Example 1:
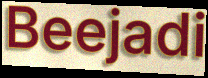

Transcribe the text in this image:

Beejadi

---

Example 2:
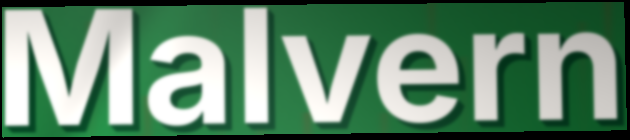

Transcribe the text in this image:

Malvern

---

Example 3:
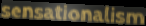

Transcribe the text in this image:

sensationalism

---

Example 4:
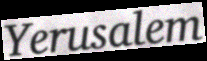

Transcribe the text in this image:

Yerusalem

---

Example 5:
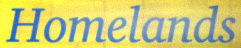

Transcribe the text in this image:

Homelands